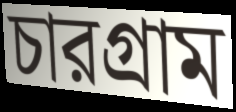
চারগ্রাম